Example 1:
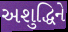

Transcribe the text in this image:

અશુદ્ધિને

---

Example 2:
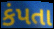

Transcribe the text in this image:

કંપતા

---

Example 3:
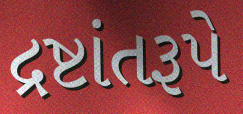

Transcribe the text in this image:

દ્રષ્ટાંતરૂપે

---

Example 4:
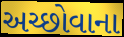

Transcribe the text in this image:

અચ્છોવાના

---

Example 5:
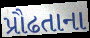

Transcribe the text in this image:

પ્રૌઢતાના